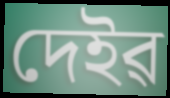
দেইৱ